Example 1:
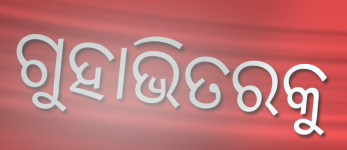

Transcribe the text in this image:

ଗୁହାଭିତରକୁ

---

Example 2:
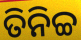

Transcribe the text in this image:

ତିନିଚ୍ଚ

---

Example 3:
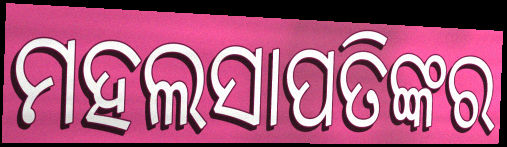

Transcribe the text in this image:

ମହଲସାପତିଙ୍କର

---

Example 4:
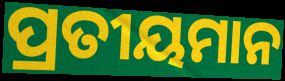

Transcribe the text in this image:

ପ୍ରତୀୟମାନ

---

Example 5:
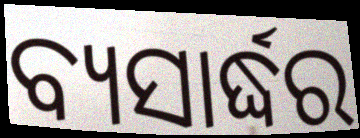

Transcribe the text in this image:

ବ୍ୟସାର୍ଦ୍ଧର